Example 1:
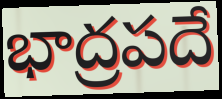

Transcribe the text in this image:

భాద్రపదే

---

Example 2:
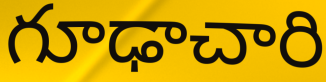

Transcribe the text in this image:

గూఢాచారి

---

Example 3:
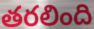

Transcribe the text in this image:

తరలింది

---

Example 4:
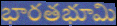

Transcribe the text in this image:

భారతభూమి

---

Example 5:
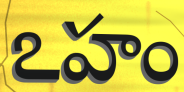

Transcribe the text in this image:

ఽహం